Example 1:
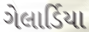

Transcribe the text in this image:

ગેલાર્ડિયા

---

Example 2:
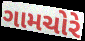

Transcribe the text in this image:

ગામચોરે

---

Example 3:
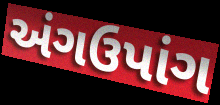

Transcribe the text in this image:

અંગઉપાંગ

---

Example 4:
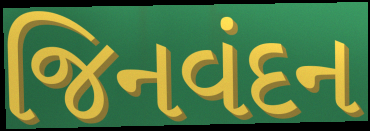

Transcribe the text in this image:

જિનવંદન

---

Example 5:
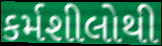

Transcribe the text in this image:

કર્મશીલોથી